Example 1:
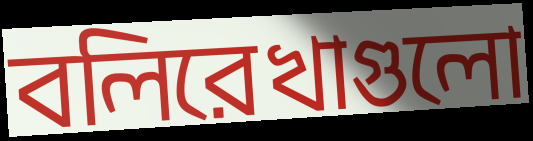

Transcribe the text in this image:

বলিরেখাগুলো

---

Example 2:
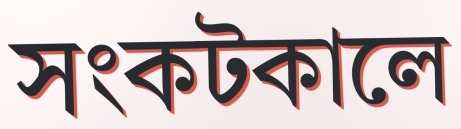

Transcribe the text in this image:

সংকটকালে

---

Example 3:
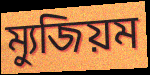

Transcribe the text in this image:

ম্যুজিয়ম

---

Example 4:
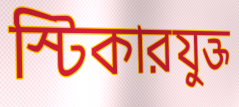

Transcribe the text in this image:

স্টিকারযুক্ত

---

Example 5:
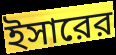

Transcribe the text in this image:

ইসারের